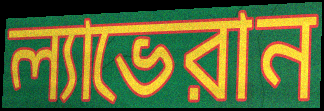
ল্যাভেরান